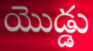
యొడ్డు